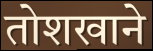
तोशखाने